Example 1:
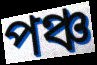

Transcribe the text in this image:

পঞ্চ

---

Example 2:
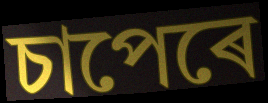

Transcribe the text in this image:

চাপেৰে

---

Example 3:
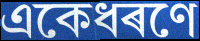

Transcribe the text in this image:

একেধৰণে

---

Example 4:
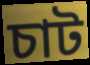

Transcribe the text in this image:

চাট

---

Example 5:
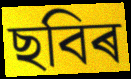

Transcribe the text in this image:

ছবিৰ